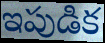
ఇపుడిక